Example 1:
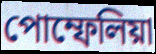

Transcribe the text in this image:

পোম্ফেলিয়া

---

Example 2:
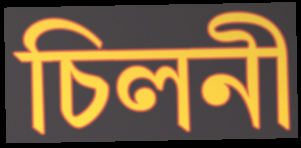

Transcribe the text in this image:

চিলনী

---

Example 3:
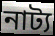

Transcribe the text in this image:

নাট্য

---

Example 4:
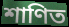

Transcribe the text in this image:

শাণিত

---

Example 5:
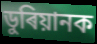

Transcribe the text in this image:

ডুৰিয়ানক